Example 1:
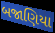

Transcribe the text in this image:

બજાણિયા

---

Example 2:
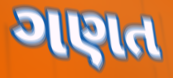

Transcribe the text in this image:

ગણત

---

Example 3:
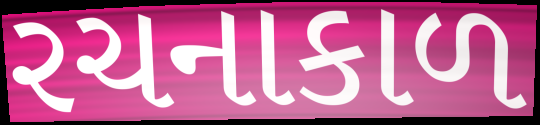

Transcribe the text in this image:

રચનાકાળ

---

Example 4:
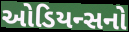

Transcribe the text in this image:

ઓડિયન્સનો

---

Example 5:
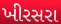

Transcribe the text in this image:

ખીરસરા